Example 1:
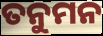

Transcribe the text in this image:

ତନୁମନ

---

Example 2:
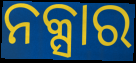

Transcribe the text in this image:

ନକ୍ସାର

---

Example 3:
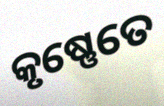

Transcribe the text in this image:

କୃଷ୍ଣେତେ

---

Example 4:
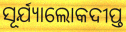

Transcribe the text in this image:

ସୂର୍ଯ୍ୟାଲୋକଦୀପ୍ତ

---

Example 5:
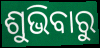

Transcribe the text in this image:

ଶୁଭିବାରୁ